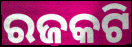
ରଜକଟି